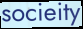
socieity